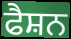
ਫੈਸ਼ਨ